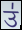
उ॑